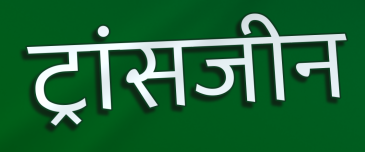
ट्रांसजीन